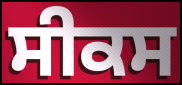
ਸੀਕਸ